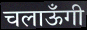
चलाऊँगी